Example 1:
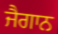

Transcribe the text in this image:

ਜੈਗਾਨ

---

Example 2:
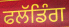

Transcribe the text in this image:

ਫਲੱਡਿੰਗ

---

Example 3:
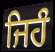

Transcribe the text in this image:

ਜਿਹੰ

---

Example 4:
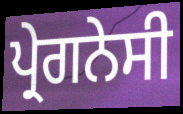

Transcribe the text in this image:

ਪ੍ਰੇਗਨੇਸੀ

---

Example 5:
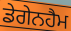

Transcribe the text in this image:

ਡੇਗੇਨਹੈਮ